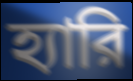
হ্যারি